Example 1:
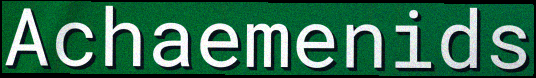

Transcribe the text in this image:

Achaemenids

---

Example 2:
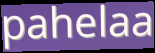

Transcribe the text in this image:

pahelaa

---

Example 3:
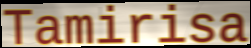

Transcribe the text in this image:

Tamirisa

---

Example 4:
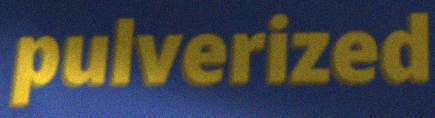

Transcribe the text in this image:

pulverized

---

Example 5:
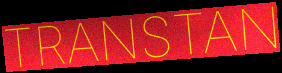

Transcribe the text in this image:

TRANSTAN